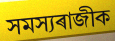
সমস্যৰাজীক